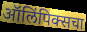
ऑलिंपिक्सचा